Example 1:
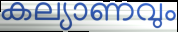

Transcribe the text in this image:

കല്യാണവും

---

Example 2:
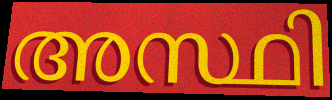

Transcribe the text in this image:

അസ്ഥി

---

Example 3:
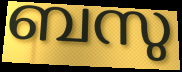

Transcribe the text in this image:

ബസു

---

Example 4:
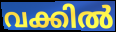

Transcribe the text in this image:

വക്കിൽ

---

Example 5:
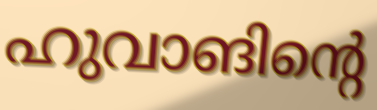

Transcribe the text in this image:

ഹുവാങിന്റെ